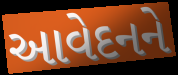
આવેદનને